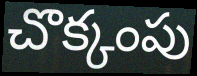
చొక్కంపు